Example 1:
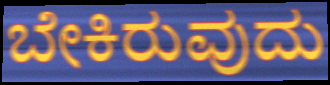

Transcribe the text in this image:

ಬೇಕಿರುವುದು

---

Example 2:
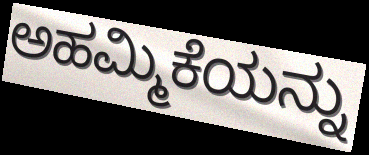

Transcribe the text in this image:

ಅಹಮ್ಮಿಕೆಯನ್ನು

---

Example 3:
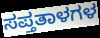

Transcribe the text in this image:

ಸಪ್ತತಾಳಗಳ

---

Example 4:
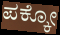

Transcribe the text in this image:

ಪಕ್ಕೋ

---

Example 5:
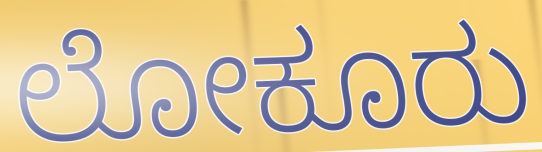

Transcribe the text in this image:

ಲೋಕೂರು